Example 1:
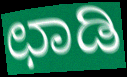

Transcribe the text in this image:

ಛಾಡಿ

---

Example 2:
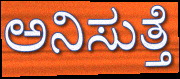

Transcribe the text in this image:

ಅನಿಸುತ್ತೆ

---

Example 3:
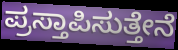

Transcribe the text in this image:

ಪ್ರಸ್ತಾಪಿಸುತ್ತೇನೆ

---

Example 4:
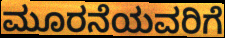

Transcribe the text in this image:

ಮೂರನೆಯವರಿಗೆ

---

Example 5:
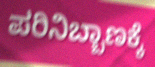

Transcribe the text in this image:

ಪರಿನಿಬ್ಬಾಣಕ್ಕೆ